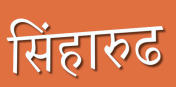
सिंहारुढ